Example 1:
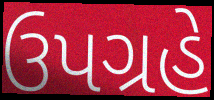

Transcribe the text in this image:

ઉપગ્રહે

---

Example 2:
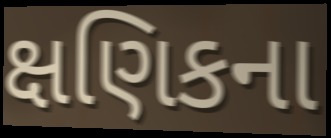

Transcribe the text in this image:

ક્ષણિકના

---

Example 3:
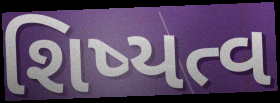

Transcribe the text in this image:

શિષ્યત્વ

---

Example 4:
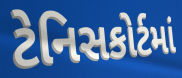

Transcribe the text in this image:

ટેનિસકોર્ટમાં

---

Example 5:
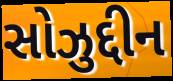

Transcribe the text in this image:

સોઝુદ્દીન